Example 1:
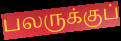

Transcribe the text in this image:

பலருக்குப்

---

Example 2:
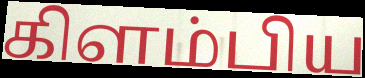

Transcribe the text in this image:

கிளம்பிய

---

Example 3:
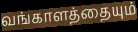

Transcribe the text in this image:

வங்காளத்தையும்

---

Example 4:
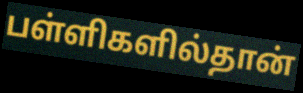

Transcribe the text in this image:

பள்ளிகளில்தான்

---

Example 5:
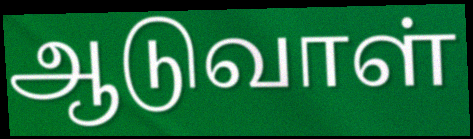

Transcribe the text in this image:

ஆடுவாள்